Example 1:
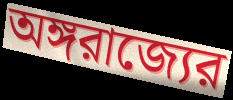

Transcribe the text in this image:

অঙ্গরাজ্যের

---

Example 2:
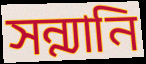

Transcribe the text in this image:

সন্মানি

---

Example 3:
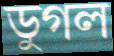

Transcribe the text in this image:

ডুগল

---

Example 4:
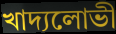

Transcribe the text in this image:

খাদ্যলোভী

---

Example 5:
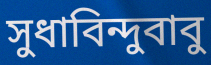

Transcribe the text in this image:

সুধাবিন্দুবাবু